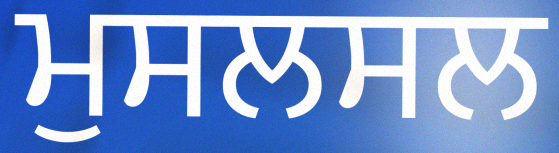
ਮੁਸਲਸਲ